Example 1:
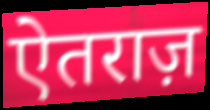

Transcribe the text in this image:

ऐतराज़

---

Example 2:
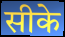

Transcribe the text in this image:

सीके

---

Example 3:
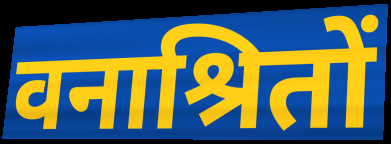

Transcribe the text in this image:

वनाश्रितों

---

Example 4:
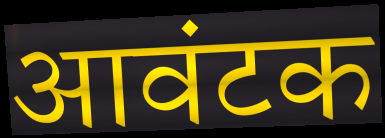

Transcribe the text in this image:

आवंटक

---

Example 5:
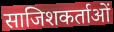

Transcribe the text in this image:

साजिशकर्ताओं